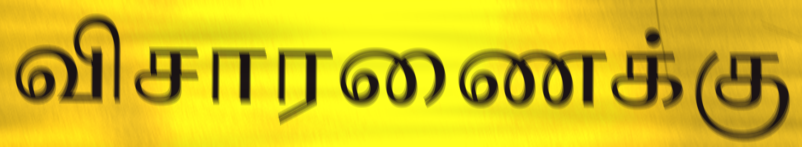
விசாரணைக்கு